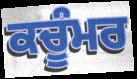
ਕਚੂੰਮਰ